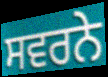
ਸਵਰਨੇ